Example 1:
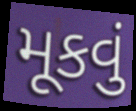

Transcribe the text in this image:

મૂકવું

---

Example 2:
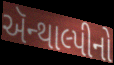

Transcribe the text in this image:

ઍન્થાલ્પીનો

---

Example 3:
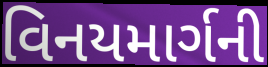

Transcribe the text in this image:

વિનયમાર્ગની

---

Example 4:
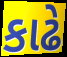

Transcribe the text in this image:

કાઢે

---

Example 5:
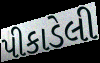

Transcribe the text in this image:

પીકાડેલી